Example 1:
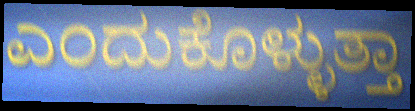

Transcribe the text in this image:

ಎಂದುಕೊಳ್ಳುತ್ತಾ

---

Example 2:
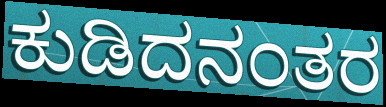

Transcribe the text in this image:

ಕುಡಿದನಂತರ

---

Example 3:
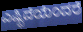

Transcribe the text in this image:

ಎಷ್ಟಿದೆಯೆಂದರೆ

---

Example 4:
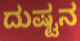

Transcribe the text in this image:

ದುಷ್ಟನ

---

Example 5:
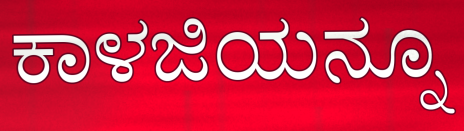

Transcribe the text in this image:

ಕಾಳಜಿಯನ್ನೂ